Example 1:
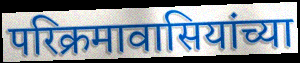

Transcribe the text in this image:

परिक्रमावासियांच्या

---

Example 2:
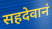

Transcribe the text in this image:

सहदेवानं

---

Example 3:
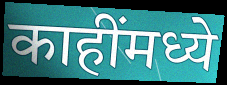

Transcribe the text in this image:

काहींमध्ये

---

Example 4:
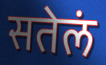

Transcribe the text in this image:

सतेलं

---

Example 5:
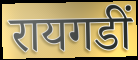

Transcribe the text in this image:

रायगडीं